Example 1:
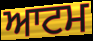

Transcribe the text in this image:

ਆਟਮ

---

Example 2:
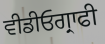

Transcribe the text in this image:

ਵੀਡੀਓਗ੍ਰਾਫੀ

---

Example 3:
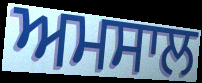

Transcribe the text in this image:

ਅਮਸਾਲ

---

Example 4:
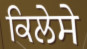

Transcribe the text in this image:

ਕਿਲੇਸੇ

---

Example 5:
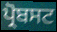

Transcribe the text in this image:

ਪ੍ਰੋਬਸਟ